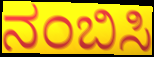
ನಂಬಿಸಿ